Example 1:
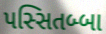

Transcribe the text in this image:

પસ્સિતબ્બા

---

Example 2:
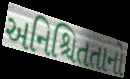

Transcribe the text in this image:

અનિશ્ચિતતાનો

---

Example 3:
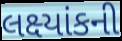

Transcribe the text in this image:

લક્ષ્યાંકની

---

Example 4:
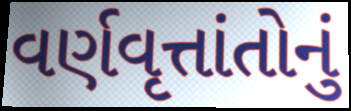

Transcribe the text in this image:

વર્ણવૃત્તાંતોનું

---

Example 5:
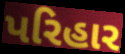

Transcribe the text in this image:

પરિહાર